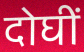
दोघीं